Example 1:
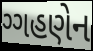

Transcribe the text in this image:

ગ્ગહણેન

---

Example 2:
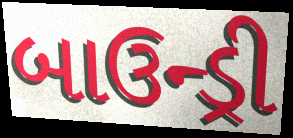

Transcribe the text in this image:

બાઉન્ડ્રી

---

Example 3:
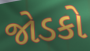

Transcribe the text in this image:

જોડકો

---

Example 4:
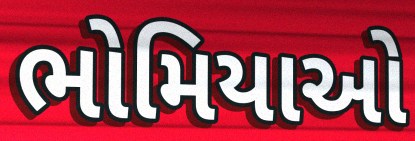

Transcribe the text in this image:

ભોમિયાઓ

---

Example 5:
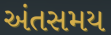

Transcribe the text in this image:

અંતસમય